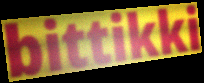
bittikki